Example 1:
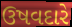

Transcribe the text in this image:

ઉષવદારે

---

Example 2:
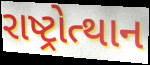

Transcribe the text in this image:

રાષ્ટ્રોત્થાન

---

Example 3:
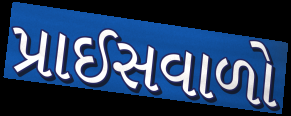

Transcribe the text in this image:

પ્રાઈસવાળો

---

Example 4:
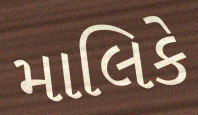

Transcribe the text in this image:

માલિકે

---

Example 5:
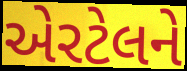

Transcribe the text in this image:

એરટેલને